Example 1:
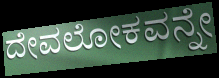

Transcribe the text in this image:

ದೇವಲೋಕವನ್ನೇ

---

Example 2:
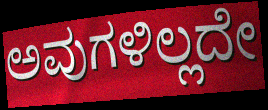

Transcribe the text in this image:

ಅವುಗಳಿಲ್ಲದೇ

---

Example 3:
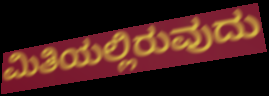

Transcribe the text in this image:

ಮಿತಿಯಲ್ಲಿರುವುದು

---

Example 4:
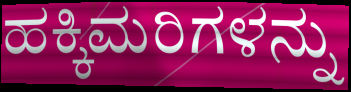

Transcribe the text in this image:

ಹಕ್ಕಿಮರಿಗಳನ್ನು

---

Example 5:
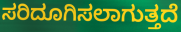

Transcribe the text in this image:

ಸರಿದೂಗಿಸಲಾಗುತ್ತದೆ